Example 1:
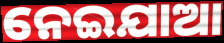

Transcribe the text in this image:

ନେଇଯାଆ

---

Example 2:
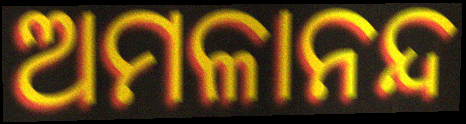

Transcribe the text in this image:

ଅମଳାନନ୍ଦ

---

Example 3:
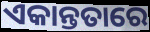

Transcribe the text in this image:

ଏକାନ୍ତତାରେ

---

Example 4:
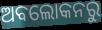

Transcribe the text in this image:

ଅବଲୋକନରୁ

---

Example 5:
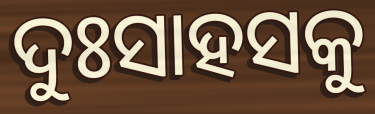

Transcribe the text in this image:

ଦୁଃସାହସକୁ